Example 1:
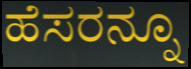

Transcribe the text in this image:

ಹೆಸರನ್ನೂ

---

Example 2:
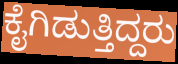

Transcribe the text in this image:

ಕೈಗಿಡುತ್ತಿದ್ದರು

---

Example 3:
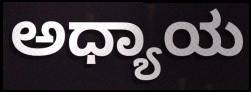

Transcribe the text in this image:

ಅಧ್ಯಾಯ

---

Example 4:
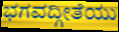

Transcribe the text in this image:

ಭಗವದ್ಗೀತೆಯು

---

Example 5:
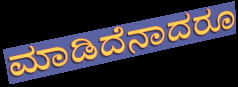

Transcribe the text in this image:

ಮಾಡಿದೆನಾದರೂ